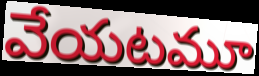
వేయటమూ